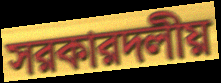
সরকারদলীয়